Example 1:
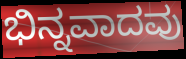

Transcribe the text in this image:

ಭಿನ್ನವಾದವು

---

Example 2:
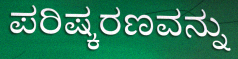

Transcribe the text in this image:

ಪರಿಷ್ಕರಣವನ್ನು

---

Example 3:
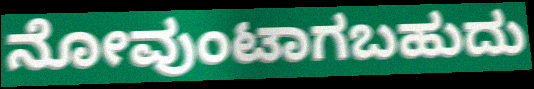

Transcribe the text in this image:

ನೋವುಂಟಾಗಬಹುದು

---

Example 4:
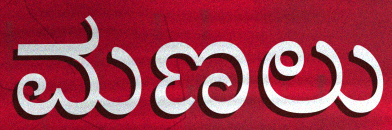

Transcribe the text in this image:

ಮಣಲು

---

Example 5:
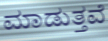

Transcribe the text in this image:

ಮಾಡುತ್ತವೆ